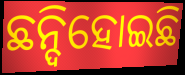
ଛନ୍ଦିହୋଇଛି